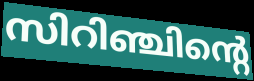
സിറിഞ്ചിന്റെ